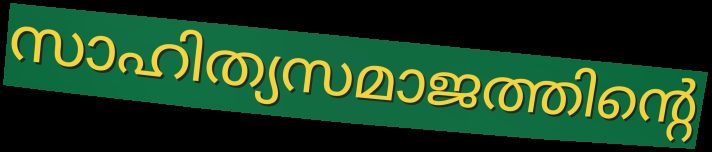
സാഹിത്യസമാജത്തിന്റെ